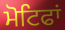
ਮੋਟਿਫਾਂ